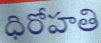
ధిరోహతి